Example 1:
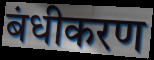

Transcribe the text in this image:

बंधीकरण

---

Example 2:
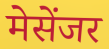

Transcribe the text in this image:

मेसेंजर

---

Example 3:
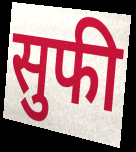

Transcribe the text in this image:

सुफी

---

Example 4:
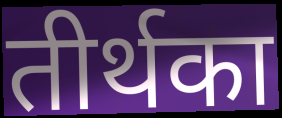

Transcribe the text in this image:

तीर्थका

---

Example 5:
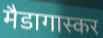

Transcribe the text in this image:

मैडागास्कर